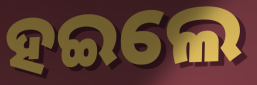
ହଇଲେ